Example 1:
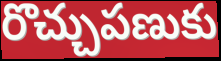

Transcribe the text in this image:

రొచ్చుపణుకు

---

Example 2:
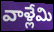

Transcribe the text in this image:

వాళ్లేమి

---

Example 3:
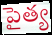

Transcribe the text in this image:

పైత్య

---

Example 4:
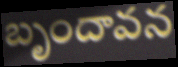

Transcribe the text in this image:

బృందావన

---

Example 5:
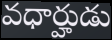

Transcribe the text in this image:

వధార్హుడు